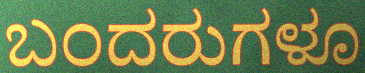
ಬಂದರುಗಳೂ